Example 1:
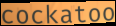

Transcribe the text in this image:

cockatoo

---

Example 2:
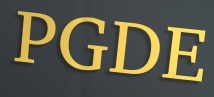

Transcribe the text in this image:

PGDE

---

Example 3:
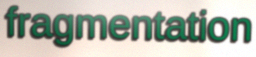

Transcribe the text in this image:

fragmentation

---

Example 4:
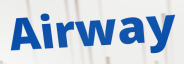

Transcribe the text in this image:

Airway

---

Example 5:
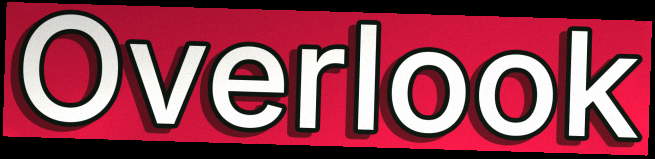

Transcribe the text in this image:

Overlook